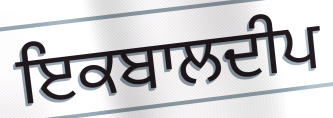
ਇਕਬਾਲਦੀਪ